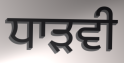
ਧਾੜਵੀ